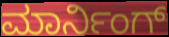
ಮಾರ್ನಿಂಗ್